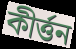
কীর্ত্তন